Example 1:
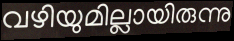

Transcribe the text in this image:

വഴിയുമില്ലായിരുന്നു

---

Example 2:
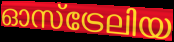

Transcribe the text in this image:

ഓസ്ട്രേലിയ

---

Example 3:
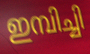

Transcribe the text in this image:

ഇമ്പിച്ചി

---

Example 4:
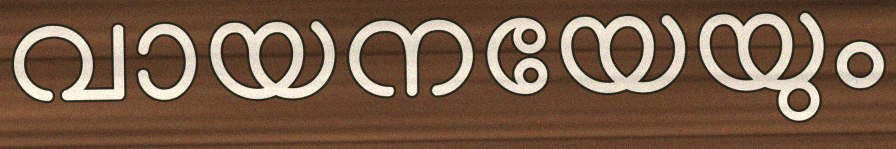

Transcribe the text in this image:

വായനയേയും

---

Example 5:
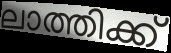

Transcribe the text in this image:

ലാത്തിക്ക്